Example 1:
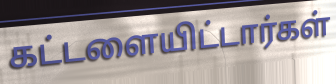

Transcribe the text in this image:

கட்டளையிட்டார்கள்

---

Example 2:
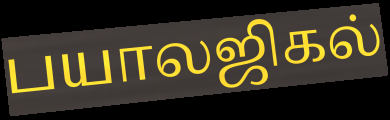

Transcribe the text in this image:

பயாலஜிகல்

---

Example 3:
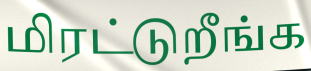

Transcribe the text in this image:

மிரட்டுறீங்க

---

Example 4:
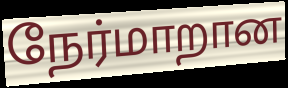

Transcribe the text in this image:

நேர்மாறான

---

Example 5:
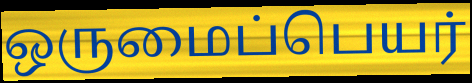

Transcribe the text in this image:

ஒருமைப்பெயர்